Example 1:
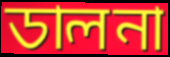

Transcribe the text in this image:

ডালনা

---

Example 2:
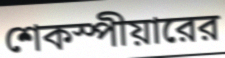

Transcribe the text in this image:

শেকস্পীয়ারের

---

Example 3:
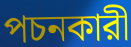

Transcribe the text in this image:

পচনকারী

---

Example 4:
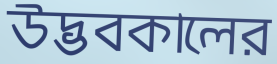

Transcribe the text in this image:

উদ্ভবকালের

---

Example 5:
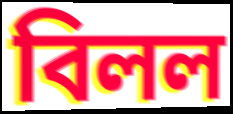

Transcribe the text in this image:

বিলল